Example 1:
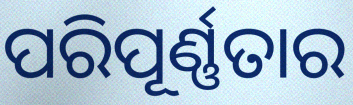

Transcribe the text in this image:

ପରିପୂର୍ଣ୍ଣତାର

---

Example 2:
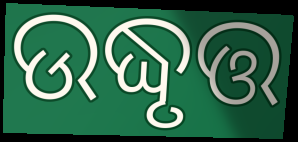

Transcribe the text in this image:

ଉଦ୍ଧୃତ୍ତ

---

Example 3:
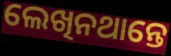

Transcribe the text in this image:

ଲେଖିନଥାନ୍ତେ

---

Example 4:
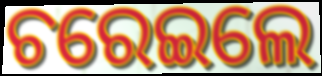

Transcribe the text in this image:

ଚରେଇଲେ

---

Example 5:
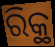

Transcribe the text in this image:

ରିକ୍ଥ